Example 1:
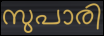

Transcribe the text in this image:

സുപാരി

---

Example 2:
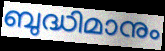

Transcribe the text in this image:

ബുദ്ധിമാനും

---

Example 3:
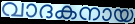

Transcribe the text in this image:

വാദകനായ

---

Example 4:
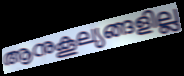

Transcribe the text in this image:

ആനുകൂല്യങ്ങളില്ല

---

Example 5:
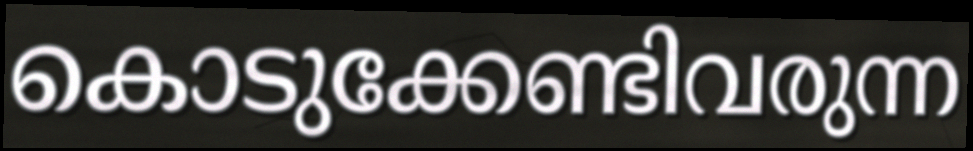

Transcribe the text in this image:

കൊടുക്കേണ്ടിവരുന്ന